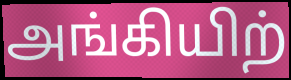
அங்கியிற்